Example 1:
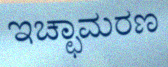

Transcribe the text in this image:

ಇಚ್ಛಾಮರಣ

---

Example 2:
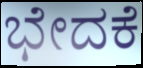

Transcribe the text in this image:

ಭೇದಕೆ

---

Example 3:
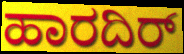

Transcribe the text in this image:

ಹಾರದಿರ್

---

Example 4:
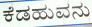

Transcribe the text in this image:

ಕೆಡಹುವನು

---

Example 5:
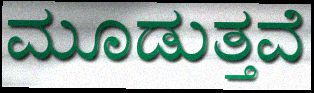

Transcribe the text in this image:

ಮೂಡುತ್ತವೆ